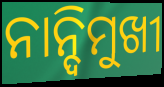
ନାନ୍ଦିମୁଖୀ